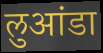
लुआंडा